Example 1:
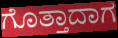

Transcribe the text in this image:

ಗೊತ್ತಾದಾಗ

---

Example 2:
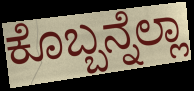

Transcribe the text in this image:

ಕೊಬ್ಬನ್ನೆಲ್ಲಾ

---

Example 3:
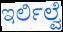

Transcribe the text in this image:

ಇರ್ಲಿಲ್ವೆ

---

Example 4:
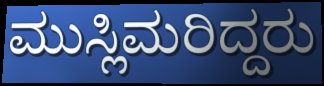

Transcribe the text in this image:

ಮುಸ್ಲಿಮರಿದ್ದರು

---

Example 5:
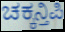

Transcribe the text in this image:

ಚಕ್ಕನ್ತಿಪಿ